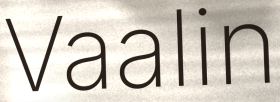
Vaalin